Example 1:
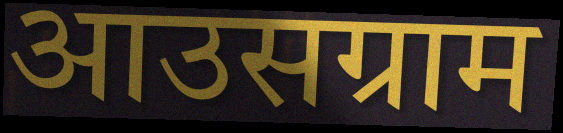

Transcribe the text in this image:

आउसग्राम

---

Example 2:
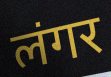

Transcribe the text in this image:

लंगर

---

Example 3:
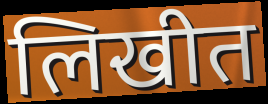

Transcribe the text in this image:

लिखीत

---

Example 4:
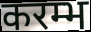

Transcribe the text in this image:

करम्भ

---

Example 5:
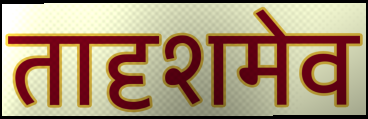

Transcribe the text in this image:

तादृशमेव